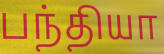
பந்தியா